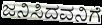
ಜನಿಸಿದವನಿಗೆ